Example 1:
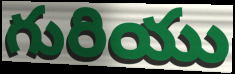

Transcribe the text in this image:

గురియు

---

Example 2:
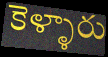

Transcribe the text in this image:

కెళ్ళారు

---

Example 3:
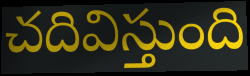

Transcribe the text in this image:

చదివిస్తుంది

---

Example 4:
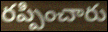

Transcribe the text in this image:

రప్పించారు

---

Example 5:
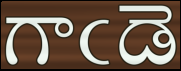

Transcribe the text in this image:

గాఁడె